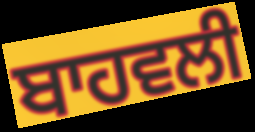
ਬਾਹਵਲੀ